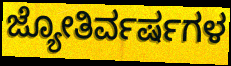
ಜ್ಯೋತಿರ್ವರ್ಷಗಳ